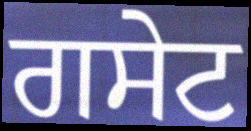
ਗਸੇਟ